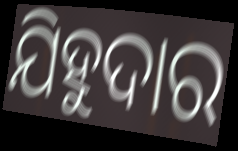
ଯିହୁଦାର